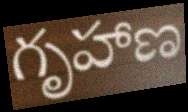
గృహాణ